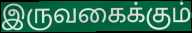
இருவகைக்கும்